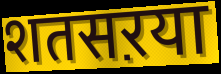
शतसऱया